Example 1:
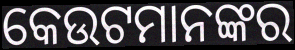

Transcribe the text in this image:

କେଉଟମାନଙ୍କର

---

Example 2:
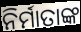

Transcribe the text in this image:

ନିର୍ମାତାଙ୍କ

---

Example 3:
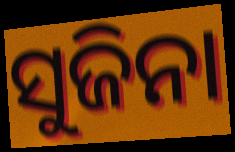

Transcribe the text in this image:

ସୁଜିନା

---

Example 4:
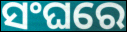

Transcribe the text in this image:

ସଂଘରେ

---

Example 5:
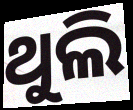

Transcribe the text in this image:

ଥୁଲି